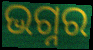
ଭଗ୍ନର